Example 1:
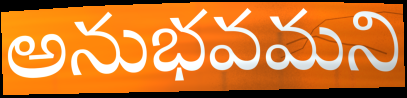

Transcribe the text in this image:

అనుభవమని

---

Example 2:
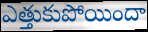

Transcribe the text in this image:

ఎత్తుకుపోయిందా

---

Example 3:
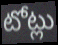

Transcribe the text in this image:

టోట్లు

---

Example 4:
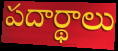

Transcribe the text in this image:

పదార్థాలు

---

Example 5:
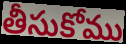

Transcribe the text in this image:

తీసుకోము